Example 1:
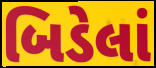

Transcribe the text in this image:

બિડેલાં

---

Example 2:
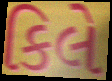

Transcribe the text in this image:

કિલે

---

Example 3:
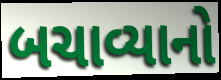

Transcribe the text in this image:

બચાવ્યાનો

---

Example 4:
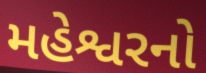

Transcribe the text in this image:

મહેશ્વરનો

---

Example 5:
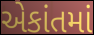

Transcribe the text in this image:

એકાંતમાં